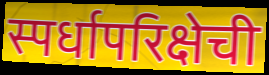
स्पर्धापरिक्षेची